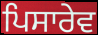
ਪਿਸਾਰੇਵ